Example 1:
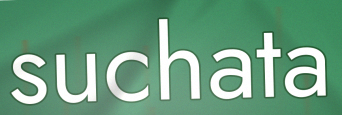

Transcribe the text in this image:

suchata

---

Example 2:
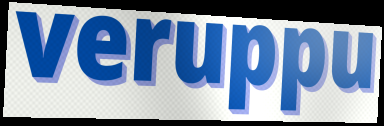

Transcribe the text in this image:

veruppu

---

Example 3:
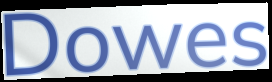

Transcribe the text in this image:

Dowes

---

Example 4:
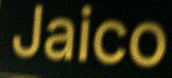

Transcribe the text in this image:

Jaico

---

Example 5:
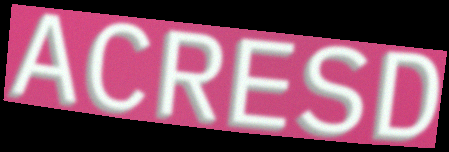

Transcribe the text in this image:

ACRESD